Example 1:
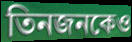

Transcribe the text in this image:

তিনজনকেও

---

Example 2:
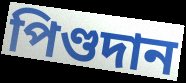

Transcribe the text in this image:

পিণ্ডদান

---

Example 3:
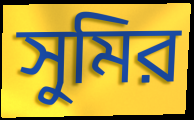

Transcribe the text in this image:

সুমির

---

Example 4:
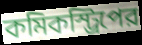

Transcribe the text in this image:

কমিকস্ট্রিপের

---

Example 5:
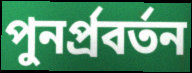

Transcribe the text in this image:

পুনর্প্রবর্তন